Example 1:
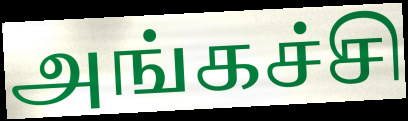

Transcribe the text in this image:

அங்கச்சி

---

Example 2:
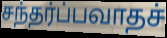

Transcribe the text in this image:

சந்தர்ப்பவாதச்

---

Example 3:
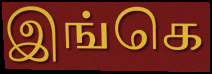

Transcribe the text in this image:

இங்கெ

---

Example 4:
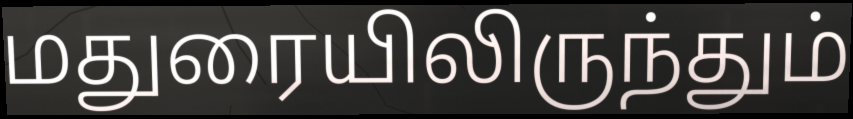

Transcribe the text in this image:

மதுரையிலிருந்தும்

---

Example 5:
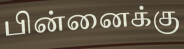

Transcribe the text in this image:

பின்னைக்கு